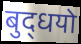
बुद्धयो